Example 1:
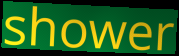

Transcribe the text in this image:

shower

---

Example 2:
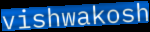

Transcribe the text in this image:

vishwakosh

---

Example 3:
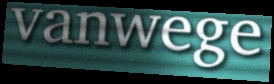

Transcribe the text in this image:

vanwege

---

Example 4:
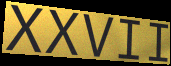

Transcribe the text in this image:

XXVII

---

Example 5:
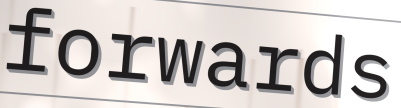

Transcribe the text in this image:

forwards